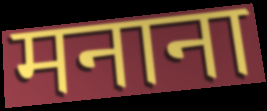
मनाना